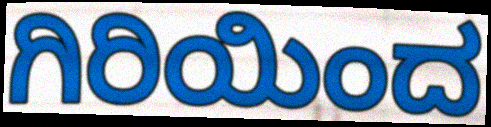
ಗಿರಿಯಿಂದ